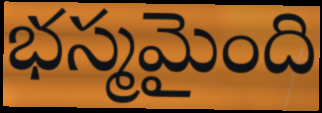
భస్మమైంది